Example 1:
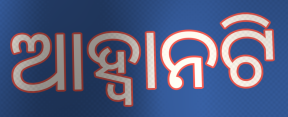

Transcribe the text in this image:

ଆହ୍ଵାନଟି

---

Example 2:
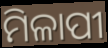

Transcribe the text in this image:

ମିଳାପୀ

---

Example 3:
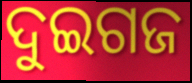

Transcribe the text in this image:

ଦୁଇଗଜ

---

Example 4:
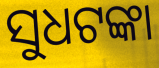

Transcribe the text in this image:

ସୁଧଟଙ୍କା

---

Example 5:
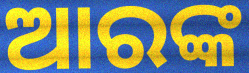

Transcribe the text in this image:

ଆରଙ୍କ